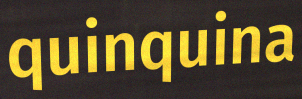
quinquina